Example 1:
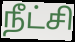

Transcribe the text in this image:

நீட்சி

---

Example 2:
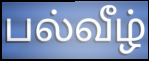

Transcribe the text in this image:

பல்வீழ்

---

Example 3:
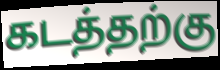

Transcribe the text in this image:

கடத்தற்கு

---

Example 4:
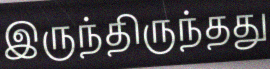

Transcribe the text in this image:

இருந்திருந்தது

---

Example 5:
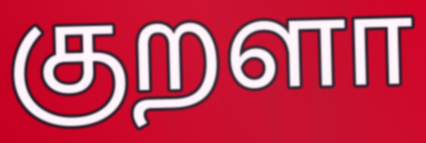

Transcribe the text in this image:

குறளா